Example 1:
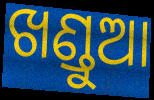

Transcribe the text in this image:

ଖଣ୍ଡୁଆ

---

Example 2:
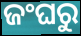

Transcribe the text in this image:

ଜଂଘରୁ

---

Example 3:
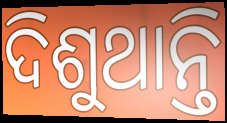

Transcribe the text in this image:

ଦିଶୁଥାନ୍ତି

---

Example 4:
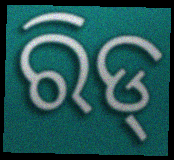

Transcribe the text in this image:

ରିଡ୍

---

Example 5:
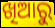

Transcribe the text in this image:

ଖିଆରୁ